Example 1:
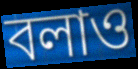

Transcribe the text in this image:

বলাও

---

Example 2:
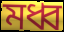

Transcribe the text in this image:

মধ্ব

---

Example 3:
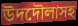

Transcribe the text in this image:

উদদৌলাসহ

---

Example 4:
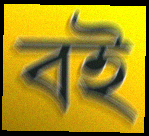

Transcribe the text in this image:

বই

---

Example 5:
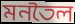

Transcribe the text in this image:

মনতৈল